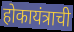
होकायंत्राची